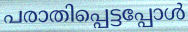
പരാതിപ്പെട്ടപ്പോൾ